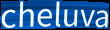
cheluva